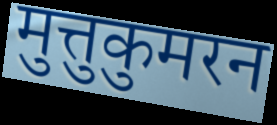
मुत्तुकुमरन